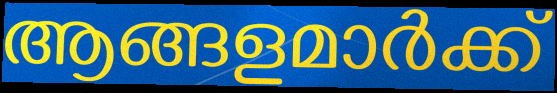
ആങ്ങളമാർക്ക്